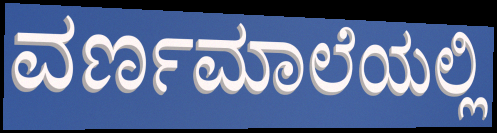
ವರ್ಣಮಾಲೆಯಲ್ಲಿ